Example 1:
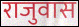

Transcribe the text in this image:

राजुवास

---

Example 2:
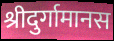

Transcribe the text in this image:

श्रीदुर्गामानस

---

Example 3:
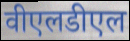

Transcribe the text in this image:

वीएलडीएल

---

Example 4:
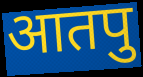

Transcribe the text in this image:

आतपु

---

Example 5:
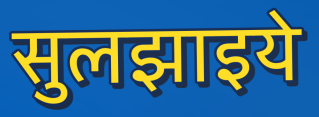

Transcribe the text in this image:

सुलझाइये